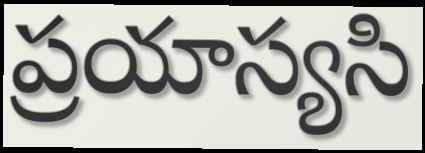
ప్రయాస్యసి